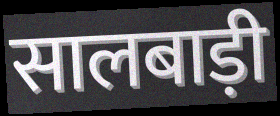
सालबाड़ी